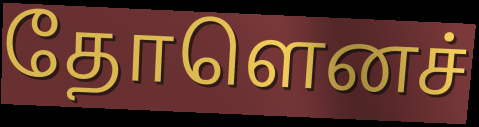
தோளெனச்